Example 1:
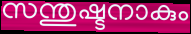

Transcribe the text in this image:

സന്തുഷ്ടനാകും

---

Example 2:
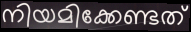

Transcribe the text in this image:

നിയമിക്കേണ്ടത്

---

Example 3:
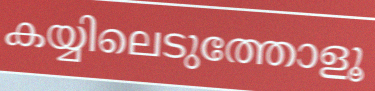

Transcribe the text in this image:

കയ്യിലെടുത്തോളൂ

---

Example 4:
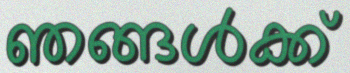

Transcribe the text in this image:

ഞങ്ങൾക്ക്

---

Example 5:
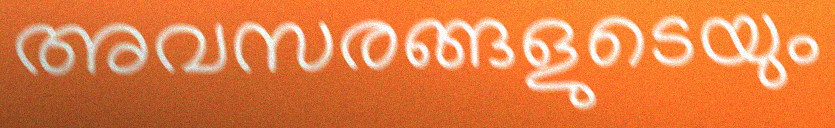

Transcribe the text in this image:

അവസരങ്ങളുടെയും